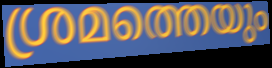
ശ്രമത്തെയും